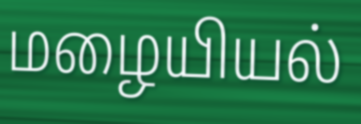
மழையியல்